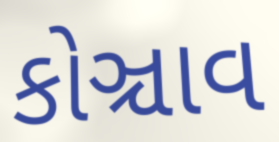
કોઞ્ચાવ